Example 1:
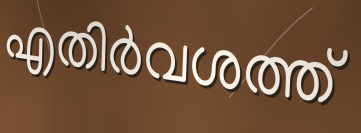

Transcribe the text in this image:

എതിർവശത്ത്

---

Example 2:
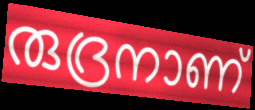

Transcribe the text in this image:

രുദ്രനാണ്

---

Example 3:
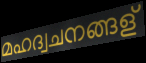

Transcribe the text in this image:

മഹദ്വചനങ്ങള്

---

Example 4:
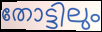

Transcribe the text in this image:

തോട്ടിലും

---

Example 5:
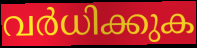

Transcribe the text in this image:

വർധിക്കുക